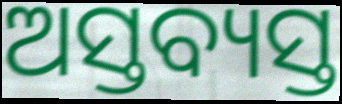
ଅସ୍ତବ୍ୟସ୍ତ